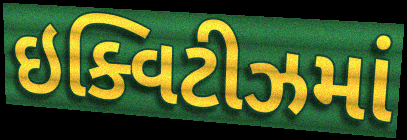
ઇક્વિટીઝમાં